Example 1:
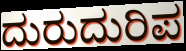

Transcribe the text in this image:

ದುರುದುರಿಪ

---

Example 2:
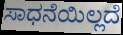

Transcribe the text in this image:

ಸಾಧನೆಯಿಲ್ಲದೆ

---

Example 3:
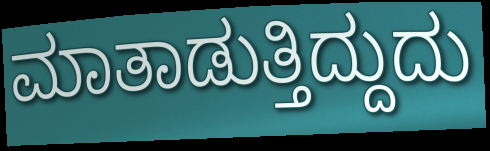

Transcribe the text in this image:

ಮಾತಾಡುತ್ತಿದ್ದುದು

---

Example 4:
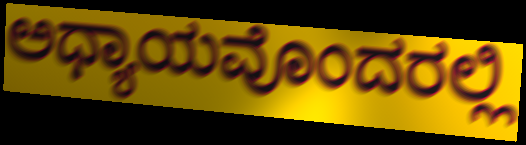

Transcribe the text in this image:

ಅಧ್ಯಾಯವೊಂದರಲ್ಲಿ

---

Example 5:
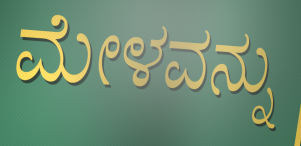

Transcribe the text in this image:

ಮೇಳವನ್ನು